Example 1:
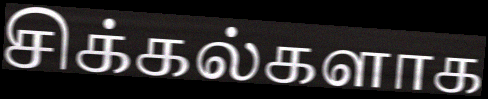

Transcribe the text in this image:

சிக்கல்களாக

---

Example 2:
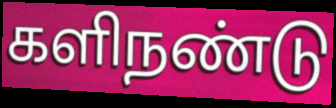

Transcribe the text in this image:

களிநண்டு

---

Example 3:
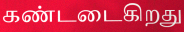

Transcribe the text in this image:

கண்டடைகிறது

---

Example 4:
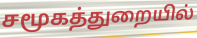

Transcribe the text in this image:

சமூகத்துறையில்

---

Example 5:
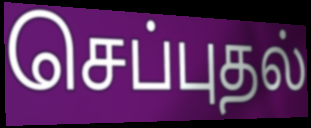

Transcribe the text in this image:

செப்புதல்